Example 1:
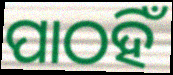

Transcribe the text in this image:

ପାଠହିଁ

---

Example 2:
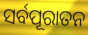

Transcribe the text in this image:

ସର୍ବପୂରାତନ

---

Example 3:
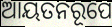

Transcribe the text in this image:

ଆୟତନରୂପେ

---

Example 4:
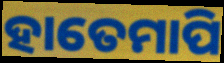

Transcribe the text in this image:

ହାତେମାପି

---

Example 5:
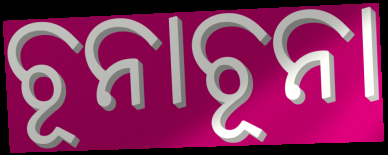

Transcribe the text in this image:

ଚୂନାଚୂନା